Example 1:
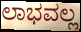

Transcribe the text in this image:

ಲಾಭವಲ್ಲ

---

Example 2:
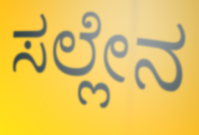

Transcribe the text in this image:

ಸಲ್ಲೇನ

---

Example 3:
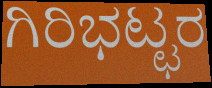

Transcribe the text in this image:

ಗಿರಿಭಟ್ಟರ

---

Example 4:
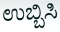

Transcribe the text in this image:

ಉಬ್ಬಿಸಿ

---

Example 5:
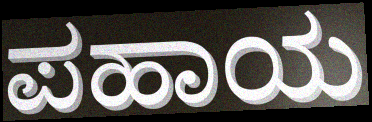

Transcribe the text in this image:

ಪಹಾಯ